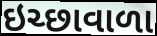
ઇચ્છાવાળા